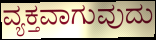
ವ್ಯಕ್ತವಾಗುವುದು